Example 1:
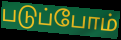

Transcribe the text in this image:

படுப்போம்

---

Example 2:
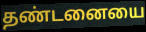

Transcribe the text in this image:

தண்டனையை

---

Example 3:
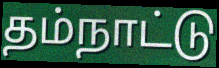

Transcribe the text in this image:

தம்நாட்டு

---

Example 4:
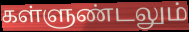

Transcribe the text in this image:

கள்ளுண்டலும்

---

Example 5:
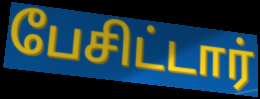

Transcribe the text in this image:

பேசிட்டார்